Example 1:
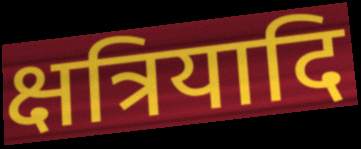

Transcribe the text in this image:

क्षत्रियादि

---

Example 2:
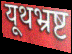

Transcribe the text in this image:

यूथभ्रष्ट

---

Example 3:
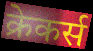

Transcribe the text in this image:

क्रेकर्स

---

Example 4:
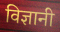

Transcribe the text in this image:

विज्ञानी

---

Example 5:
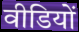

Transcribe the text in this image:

वीडियों